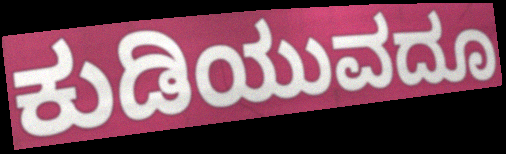
ಕುಡಿಯುವದೂ